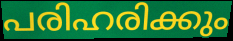
പരിഹരിക്കും